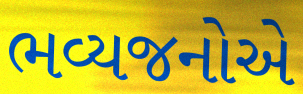
ભવ્યજનોએ